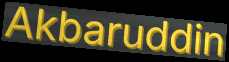
Akbaruddin